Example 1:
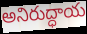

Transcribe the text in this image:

అనిరుద్ధాయ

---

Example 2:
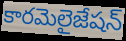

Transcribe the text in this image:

కారమెలైజేషన్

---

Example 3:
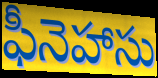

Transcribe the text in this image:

ఫీనెహాసు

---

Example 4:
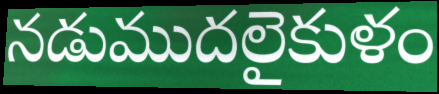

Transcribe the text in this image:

నడుముదలైకుళం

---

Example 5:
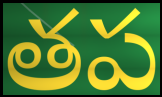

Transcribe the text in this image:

తప